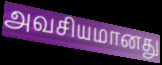
அவசியமானது